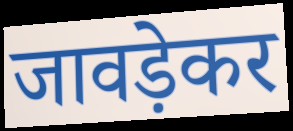
जावड़ेकर